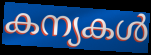
കന്യകൾ